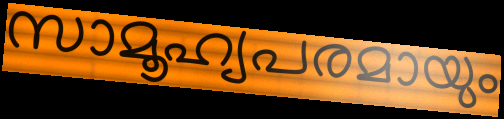
സാമൂഹ്യപരമായും